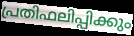
പ്രതിഫലിപ്പിക്കും